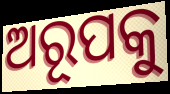
ଅରୂପକୁ